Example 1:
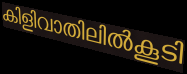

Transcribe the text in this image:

കിളിവാതിലിൽകൂടി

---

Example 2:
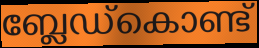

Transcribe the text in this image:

ബ്ലേഡ്കൊണ്ട്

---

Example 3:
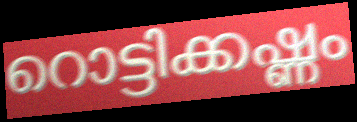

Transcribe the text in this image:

റൊട്ടിക്കഷ്ണം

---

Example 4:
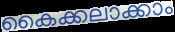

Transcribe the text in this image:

കൈക്കലാക്കാം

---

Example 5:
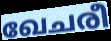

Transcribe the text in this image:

ഖേചരീ